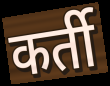
कर्ती